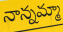
నాన్నమ్మా